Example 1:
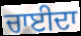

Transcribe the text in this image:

ਚਾਈਦਾ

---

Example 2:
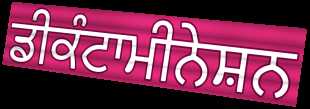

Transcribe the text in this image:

ਡੀਕੰਟਾਮੀਨੇਸ਼ਨ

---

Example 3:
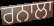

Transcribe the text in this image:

ਰਨਾਲਾ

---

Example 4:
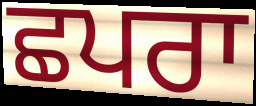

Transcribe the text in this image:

ਛਪਰਾ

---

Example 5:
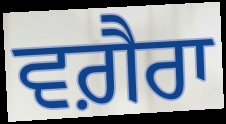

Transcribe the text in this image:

ਵਗ਼ੈਰਾ